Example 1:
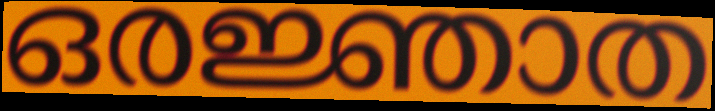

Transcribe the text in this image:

ഒരജ്ഞാത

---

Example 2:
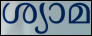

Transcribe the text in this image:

ശ്യാമ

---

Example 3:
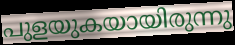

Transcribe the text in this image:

പുളയുകയായിരുന്നു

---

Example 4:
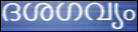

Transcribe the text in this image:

ദശഗവ്യം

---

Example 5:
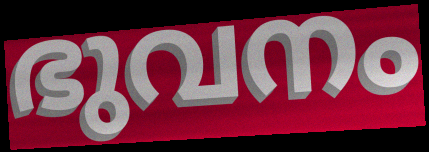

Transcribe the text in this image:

ഭുവനം